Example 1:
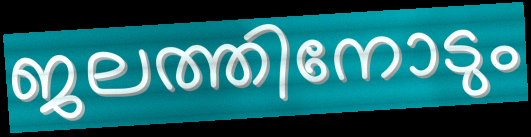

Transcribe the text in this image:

ജലത്തിനോടും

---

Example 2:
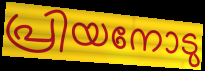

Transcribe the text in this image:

പ്രിയനോടു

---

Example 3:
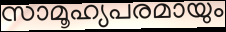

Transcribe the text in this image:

സാമൂഹ്യപരമായും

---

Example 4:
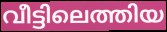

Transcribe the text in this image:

വീട്ടിലെത്തിയ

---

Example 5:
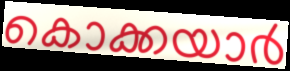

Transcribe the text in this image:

കൊക്കയാർ